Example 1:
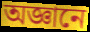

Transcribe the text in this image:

অজ্ঞানে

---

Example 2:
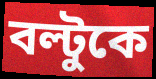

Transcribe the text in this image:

বল্টুকে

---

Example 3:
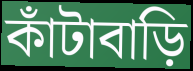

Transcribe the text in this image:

কাঁটাবাড়ি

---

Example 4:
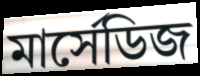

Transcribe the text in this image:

মার্সেডিজ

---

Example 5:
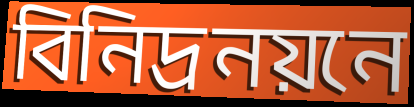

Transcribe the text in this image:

বিনিদ্রনয়নে